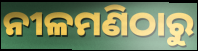
ନୀଳମଣିଠାରୁ